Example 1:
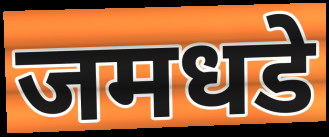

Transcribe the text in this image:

जमधडे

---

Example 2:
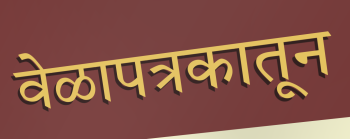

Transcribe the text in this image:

वेळापत्रकातून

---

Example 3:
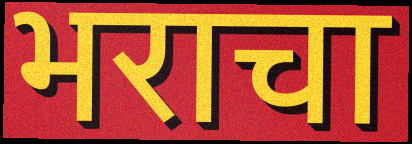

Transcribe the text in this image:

भराचा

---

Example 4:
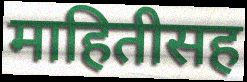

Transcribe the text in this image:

माहितीसह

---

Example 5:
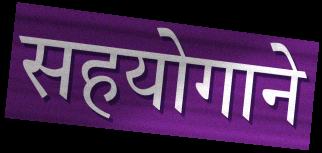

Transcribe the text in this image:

सहयोगाने